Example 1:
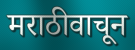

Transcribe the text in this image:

मराठीवाचून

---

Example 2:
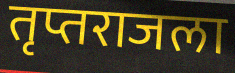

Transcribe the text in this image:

तृप्तराजला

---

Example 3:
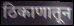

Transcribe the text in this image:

ठिकाणातून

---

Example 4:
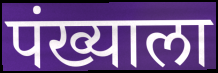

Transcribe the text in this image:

पंख्याला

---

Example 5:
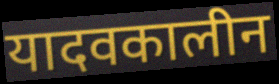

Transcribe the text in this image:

यादवकालीन